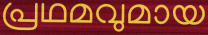
പ്രഥമവുമായ